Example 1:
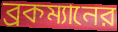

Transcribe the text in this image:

ব্রকম্যানের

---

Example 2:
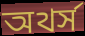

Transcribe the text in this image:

অথর্স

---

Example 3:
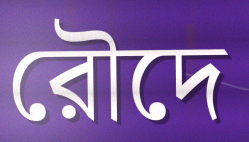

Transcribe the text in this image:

রৌদে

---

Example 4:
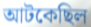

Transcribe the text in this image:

আটকেছিল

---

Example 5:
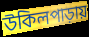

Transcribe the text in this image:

উকিলপাড়ায়